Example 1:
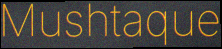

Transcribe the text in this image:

Mushtaque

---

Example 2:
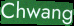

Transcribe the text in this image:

Chwang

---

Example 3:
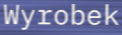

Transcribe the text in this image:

Wyrobek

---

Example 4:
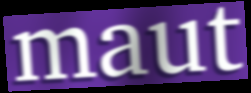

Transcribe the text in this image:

maut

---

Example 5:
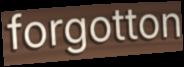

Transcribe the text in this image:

forgotton